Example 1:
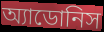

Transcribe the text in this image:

অ্যাডোনিস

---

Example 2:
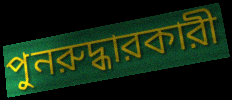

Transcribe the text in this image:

পুনরুদ্ধারকারী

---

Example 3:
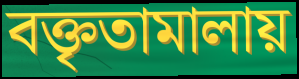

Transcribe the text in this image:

বক্তৃতামালায়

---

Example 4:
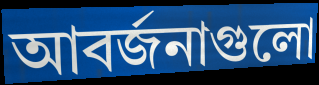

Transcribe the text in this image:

আবর্জনাগুলো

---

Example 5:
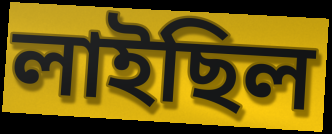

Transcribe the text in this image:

লাইছিল